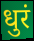
धुरं